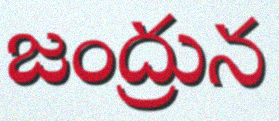
జంద్రున